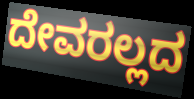
ದೇವರಲ್ಲದ